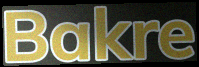
Bakre